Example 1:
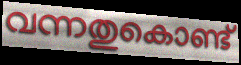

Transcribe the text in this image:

വന്നതുകൊണ്ട്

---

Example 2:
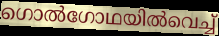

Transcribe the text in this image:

ഗൊൽഗോഥയിൽവെച്ച്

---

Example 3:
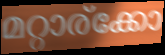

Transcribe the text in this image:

മറ്റാര്ക്കോ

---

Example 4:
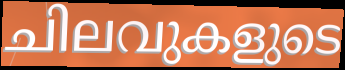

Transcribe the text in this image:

ചിലവുകളുടെ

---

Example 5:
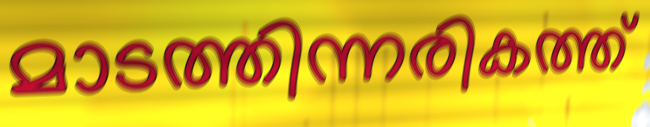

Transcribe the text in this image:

മാടത്തിന്നരികത്ത്